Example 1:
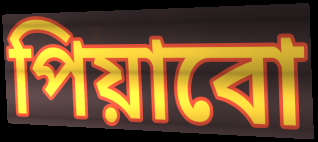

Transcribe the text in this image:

পিয়াবো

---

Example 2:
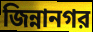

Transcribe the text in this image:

জিন্নানগর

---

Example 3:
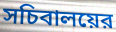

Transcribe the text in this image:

সচিবালয়ের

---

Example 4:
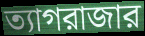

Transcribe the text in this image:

ত্যাগরাজার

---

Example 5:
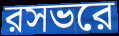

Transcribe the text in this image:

রসভরে